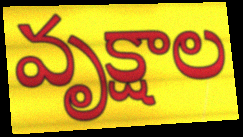
వృక్షాల